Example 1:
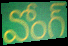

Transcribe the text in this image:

వోంగ్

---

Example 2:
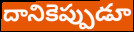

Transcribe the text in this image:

దానికెప్పుడూ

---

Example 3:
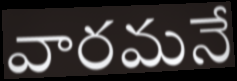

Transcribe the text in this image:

వారమనే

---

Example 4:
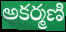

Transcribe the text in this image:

అకర్మణి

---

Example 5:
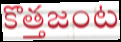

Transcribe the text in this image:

కొత్తజంట